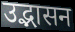
उद्भासन